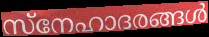
സ്നേഹാദരങ്ങൾ